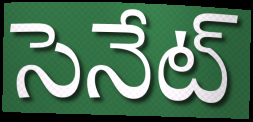
సెనేట్